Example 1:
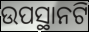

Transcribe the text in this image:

ଉପସ୍ଥାନଟି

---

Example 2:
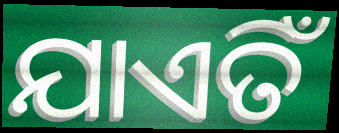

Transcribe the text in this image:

ଯାଏତିଁ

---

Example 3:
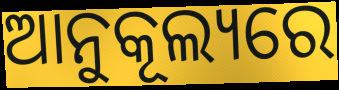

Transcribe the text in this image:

ଆନୁକୂଲ୍ୟରେ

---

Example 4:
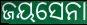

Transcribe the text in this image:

ଜୟସେନା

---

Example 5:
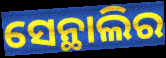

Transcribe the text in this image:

ସେନ୍ଥାଲିର